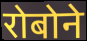
रोबोने